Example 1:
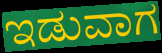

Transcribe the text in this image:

ಇಡುವಾಗ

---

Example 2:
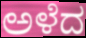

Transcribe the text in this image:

ಅಳೆದ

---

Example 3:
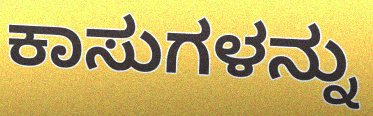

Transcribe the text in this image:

ಕಾಸುಗಳನ್ನು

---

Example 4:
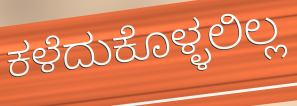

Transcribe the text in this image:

ಕಳೆದುಕೊಳ್ಳಲಿಲ್ಲ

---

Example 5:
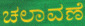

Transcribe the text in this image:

ಚಲಾವಣೆ